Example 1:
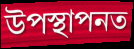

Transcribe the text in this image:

উপস্থাপনত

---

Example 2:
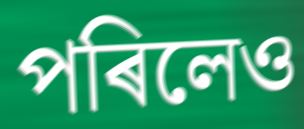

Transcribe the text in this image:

পৰিলেও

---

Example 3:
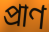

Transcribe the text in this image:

প্ৰাণ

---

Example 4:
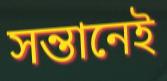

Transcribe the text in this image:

সন্তানেই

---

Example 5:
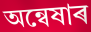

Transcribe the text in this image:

অন্বেষাৰ